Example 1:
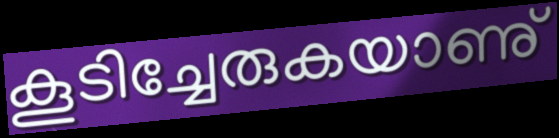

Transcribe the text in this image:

കൂടിച്ചേരുകയാണു്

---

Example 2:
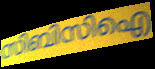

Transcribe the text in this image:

സിബിസിഐ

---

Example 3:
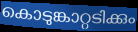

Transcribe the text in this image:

കൊടുങ്കാറ്റടിക്കും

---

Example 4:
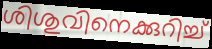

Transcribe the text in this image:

ശിശുവിനെക്കുറിച്ച്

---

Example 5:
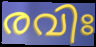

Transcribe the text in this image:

രവിഃ